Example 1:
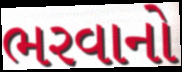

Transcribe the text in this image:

ભરવાનો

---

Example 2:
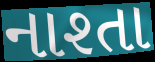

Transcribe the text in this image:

નાશ્તા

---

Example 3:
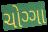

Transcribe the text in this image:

ચોગ્ગા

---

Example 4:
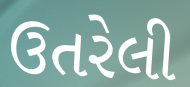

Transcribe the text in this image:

ઉતરેલી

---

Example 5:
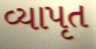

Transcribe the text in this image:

વ્યાપૃત